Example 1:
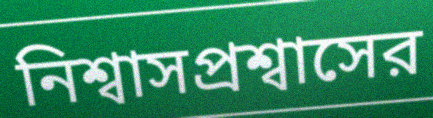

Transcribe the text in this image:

নিশ্বাসপ্রশ্বাসের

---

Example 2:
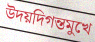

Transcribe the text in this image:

উদয়দিগন্তমুখে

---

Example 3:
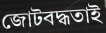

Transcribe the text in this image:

জোটবদ্ধতাই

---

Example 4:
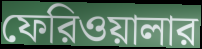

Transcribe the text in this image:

ফেরিওয়ালার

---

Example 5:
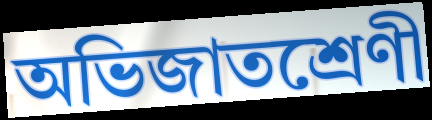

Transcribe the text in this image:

অভিজাতশ্রেণী